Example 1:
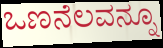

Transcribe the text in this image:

ಒಣನೆಲವನ್ನೂ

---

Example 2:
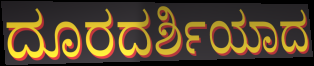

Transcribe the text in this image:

ದೂರದರ್ಶಿಯಾದ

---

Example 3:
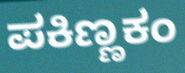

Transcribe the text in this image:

ಪಕಿಣ್ಣಕಂ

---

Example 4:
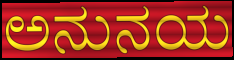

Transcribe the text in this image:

ಅನುನಯ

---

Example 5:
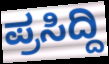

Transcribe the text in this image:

ಪ್ರಸಿದ್ದಿ